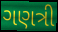
ગણત્રી